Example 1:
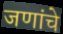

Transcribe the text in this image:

जणांचे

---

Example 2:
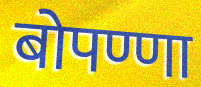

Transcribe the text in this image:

बोपण्णा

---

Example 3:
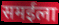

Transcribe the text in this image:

समईला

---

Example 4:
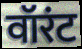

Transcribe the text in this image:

वॉरंट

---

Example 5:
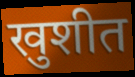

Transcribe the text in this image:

खुशीत